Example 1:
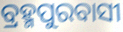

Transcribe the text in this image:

ବ୍ରହ୍ମପୁରବାସୀ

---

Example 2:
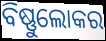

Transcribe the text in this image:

ବିଷ୍ଣୁଲୋକର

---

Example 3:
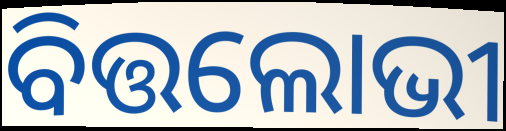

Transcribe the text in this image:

ବିତ୍ତଲୋଭୀ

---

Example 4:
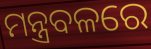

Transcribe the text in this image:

ମନ୍ତ୍ରବଳରେ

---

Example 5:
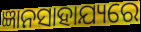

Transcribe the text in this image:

ଜ୍ଞାନସାହାଯ୍ୟରେ